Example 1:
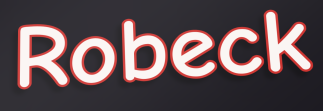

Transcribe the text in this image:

Robeck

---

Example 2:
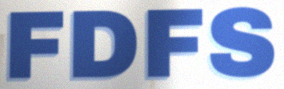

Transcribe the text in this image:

FDFS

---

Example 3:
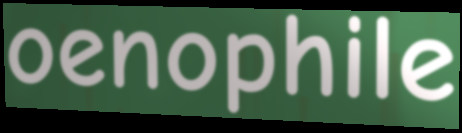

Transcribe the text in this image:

oenophile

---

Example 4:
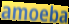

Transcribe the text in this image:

amoeba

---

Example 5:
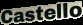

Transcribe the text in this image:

Castello